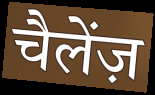
चैलेंज़